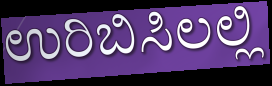
ಉರಿಬಿಸಿಲಲ್ಲಿ